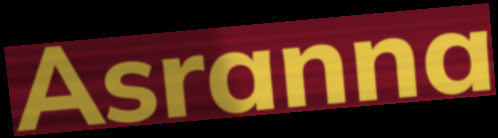
Asranna